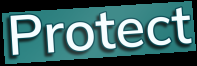
Protect